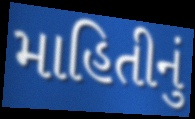
માહિતીનું